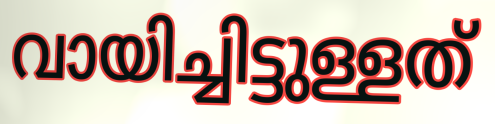
വായിച്ചിട്ടുള്ളത്